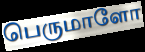
பெருமாளோ